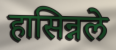
हासिन्नले